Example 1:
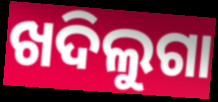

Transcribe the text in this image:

ଖଦିଲୁଗା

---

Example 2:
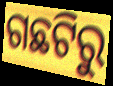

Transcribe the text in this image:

ଗଛଟିରୁ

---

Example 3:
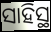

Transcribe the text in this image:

ସାହିସ୍ଥ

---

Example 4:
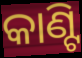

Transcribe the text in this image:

କାଣ୍ଟି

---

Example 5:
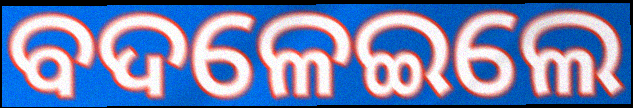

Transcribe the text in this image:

ବଦଳେଇଲେ